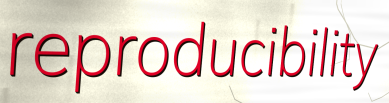
reproducibility